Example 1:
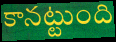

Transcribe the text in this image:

కానట్టుంది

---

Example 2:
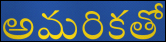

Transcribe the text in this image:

అమరికతో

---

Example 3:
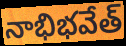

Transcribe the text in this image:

నాభిభవేత్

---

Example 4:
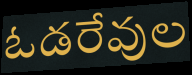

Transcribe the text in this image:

ఓడరేవుల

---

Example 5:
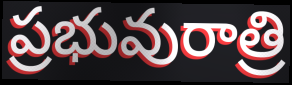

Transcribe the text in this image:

ప్రభువురాత్రి